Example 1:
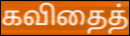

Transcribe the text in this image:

கவிதைத்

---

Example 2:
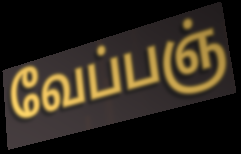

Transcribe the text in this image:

வேப்பஞ்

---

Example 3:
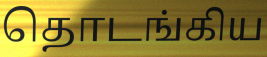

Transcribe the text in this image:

தொடங்கிய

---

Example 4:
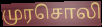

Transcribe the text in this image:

முரசொலி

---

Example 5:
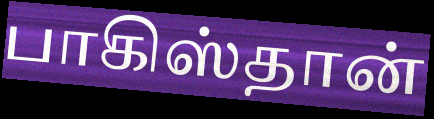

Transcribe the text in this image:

பாகிஸ்தான்